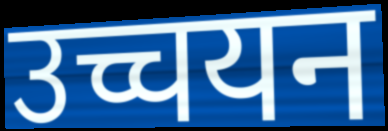
उच्चयन